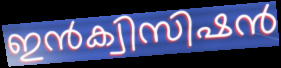
ഇൻക്വിസിഷൻ